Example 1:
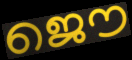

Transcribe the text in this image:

ജൌ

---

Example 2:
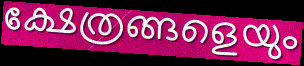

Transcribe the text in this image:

ക്ഷേത്രങ്ങളെയും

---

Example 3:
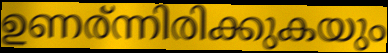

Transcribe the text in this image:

ഉണര്ന്നിരിക്കുകയും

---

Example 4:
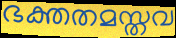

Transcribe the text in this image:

ഭക്തതമസ്തവ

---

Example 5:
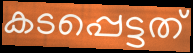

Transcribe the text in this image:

കടപ്പെട്ടത്